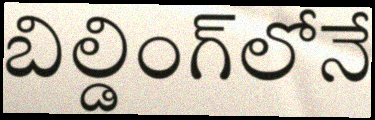
బిల్డింగ్‌లోనే